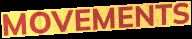
MOVEMENTS